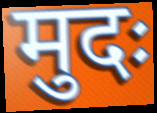
मुदः